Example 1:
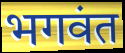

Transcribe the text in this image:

भगवंत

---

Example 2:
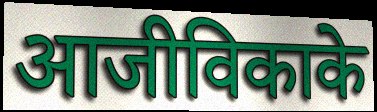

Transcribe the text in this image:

आजीविकाके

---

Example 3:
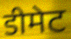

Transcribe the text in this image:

डीमेट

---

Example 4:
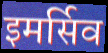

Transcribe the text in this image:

इमर्सिव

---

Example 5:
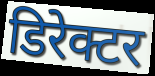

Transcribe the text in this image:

डिरेक्टर